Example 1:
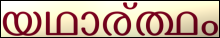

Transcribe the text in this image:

യഥാര്ത്ഥം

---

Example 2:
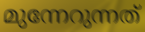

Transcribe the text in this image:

മുന്നേറുന്നത്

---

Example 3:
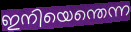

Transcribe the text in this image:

ഇനിയെന്തെന്ന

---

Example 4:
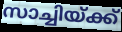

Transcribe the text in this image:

സാച്ചിയ്ക്ക്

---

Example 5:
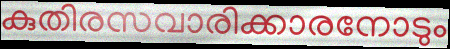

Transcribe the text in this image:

കുതിരസവാരിക്കാരനോടും